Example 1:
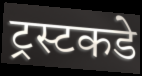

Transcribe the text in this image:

ट्रस्टकडे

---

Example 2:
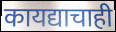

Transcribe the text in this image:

कायद्याचाही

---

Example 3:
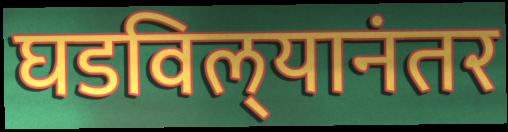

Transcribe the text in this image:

घडविल्यानंतर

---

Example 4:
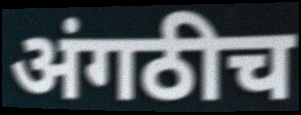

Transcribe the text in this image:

अंगठीच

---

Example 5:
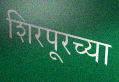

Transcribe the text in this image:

शिरपूरच्या